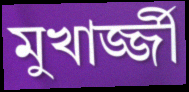
মুখার্জ্জী